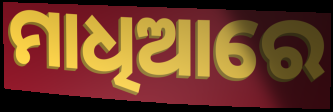
ମାଧିଆରେ